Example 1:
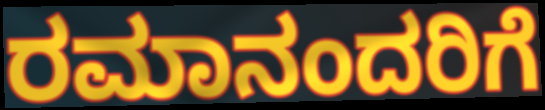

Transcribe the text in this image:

ರಮಾನಂದರಿಗೆ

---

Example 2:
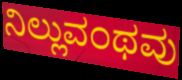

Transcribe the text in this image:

ನಿಲ್ಲುವಂಥವು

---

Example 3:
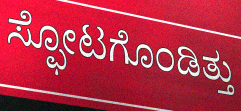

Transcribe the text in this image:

ಸ್ಫೋಟಗೊಂಡಿತ್ತು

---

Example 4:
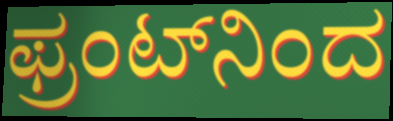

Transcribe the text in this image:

ಫ್ರಂಟ್‌ನಿಂದ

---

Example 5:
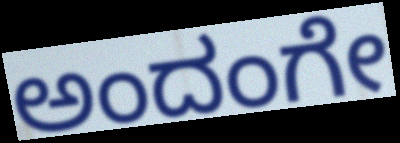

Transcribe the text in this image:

ಅಂದಂಗೇ